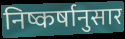
निष्कर्षानुसार